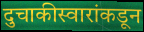
दुचाकीस्वारांकडून